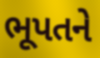
ભૂપતને